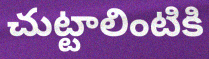
చుట్టాలింటికి